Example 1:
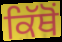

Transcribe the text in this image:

ਕਿੱਥੋੰ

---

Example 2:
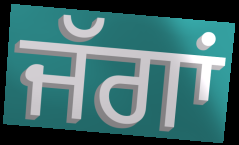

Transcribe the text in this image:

ਜੱਗਾਂ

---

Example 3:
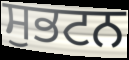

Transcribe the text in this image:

ਸੁਭਟਨ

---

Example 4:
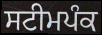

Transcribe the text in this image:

ਸਟੀਮਪੰਕ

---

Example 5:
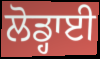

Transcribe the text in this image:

ਲੋਡ੍ਹਾਈ